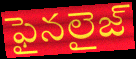
ఫైనలైజ్